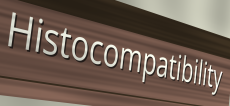
Histocompatibility